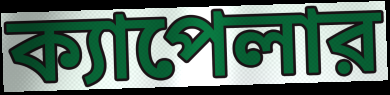
ক্যাপেলার